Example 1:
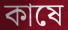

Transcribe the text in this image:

কাষে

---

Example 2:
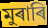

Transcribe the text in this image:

মুৰাৰি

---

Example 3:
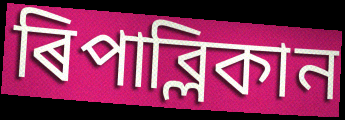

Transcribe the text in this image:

ৰিপাব্লিকান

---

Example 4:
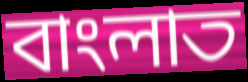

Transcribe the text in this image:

বাংলাত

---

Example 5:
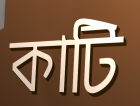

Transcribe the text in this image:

কাটি